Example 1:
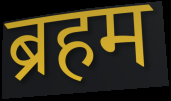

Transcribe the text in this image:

ब्रहम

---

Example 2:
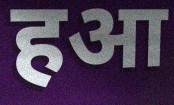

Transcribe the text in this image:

हआ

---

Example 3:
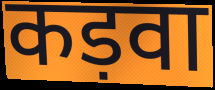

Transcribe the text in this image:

कड़वा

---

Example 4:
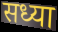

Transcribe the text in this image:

सध्या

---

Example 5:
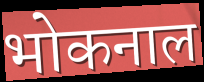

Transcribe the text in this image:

भोकनाल